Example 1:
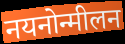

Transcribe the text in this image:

नयनोन्मीलन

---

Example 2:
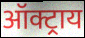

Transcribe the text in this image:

ऑक्ट्राय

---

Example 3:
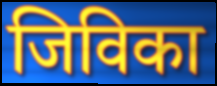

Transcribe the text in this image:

जिविका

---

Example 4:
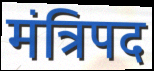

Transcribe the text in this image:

मंत्रिपद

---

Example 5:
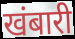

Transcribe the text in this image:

खंबारी